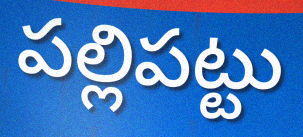
పల్లిపట్టు